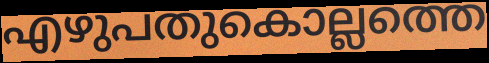
എഴുപതുകൊല്ലത്തെ